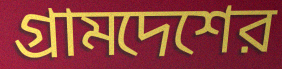
গ্রামদেশের